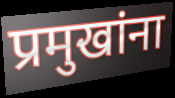
प्रमुखांना